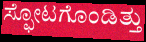
ಸ್ಫೋಟಗೊಂಡಿತ್ತು